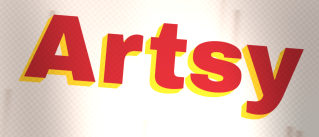
Artsy